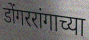
डोंगररांगाच्या